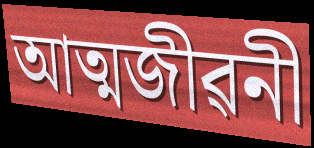
আত্মজীৱনী